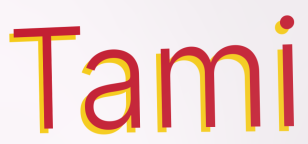
Tami